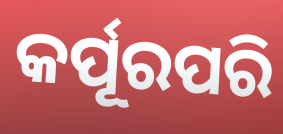
କର୍ପୂରପରି